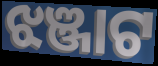
ଝଞ୍ଜାଟ